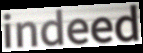
indeed